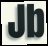
Jb